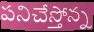
పనిచేస్తోన్న